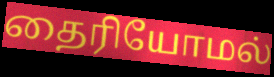
தைரியோமல்